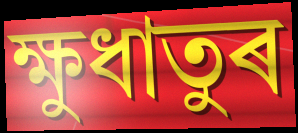
ক্ষুধাতুৰ